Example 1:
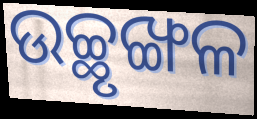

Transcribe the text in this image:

ଉଚ୍ଛୃଙ୍ଖଳ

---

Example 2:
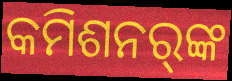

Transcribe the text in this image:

କମିଶନର୍‌ଙ୍କ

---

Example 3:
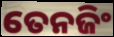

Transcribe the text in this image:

ତେନଜିଂ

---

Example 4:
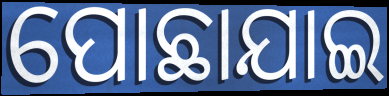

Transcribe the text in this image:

ପୋଛାଯାଇ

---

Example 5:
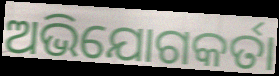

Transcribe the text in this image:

ଅଭିଯୋଗକର୍ତା